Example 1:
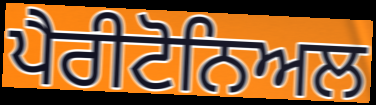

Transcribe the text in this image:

ਪੈਰੀਟੋਨਿਅਲ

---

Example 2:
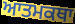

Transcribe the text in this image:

ਆਤਮਕਥਾ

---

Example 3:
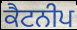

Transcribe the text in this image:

ਕੈਟਨੀਪ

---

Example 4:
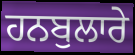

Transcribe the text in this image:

ਹਨਬੁਲਾਰੇ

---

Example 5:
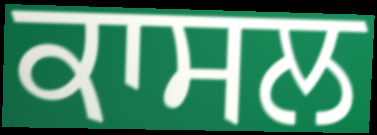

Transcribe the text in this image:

ਕਾਸਲ